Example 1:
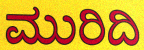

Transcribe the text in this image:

ಮುರಿದಿ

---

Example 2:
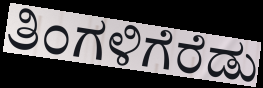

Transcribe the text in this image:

ತಿಂಗಳಿಗೆರೆಡು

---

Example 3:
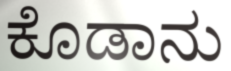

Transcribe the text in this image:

ಕೊಡಾನು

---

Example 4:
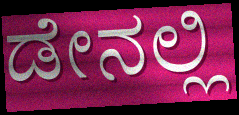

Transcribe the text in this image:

ಡೇನಲ್ಲಿ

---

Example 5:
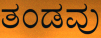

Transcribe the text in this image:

ತಂಡವು